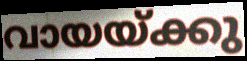
വായയ്ക്കു